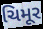
ચિમૂર